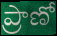
ప్రాణో